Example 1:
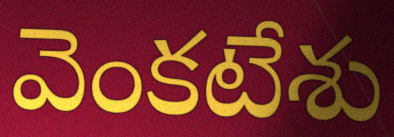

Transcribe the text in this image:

వెంకటేశు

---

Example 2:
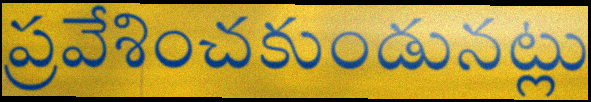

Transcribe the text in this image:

ప్రవేశించకుండునట్లు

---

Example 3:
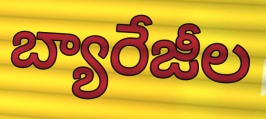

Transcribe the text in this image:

బ్యారేజీల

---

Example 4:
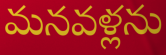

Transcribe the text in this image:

మనవళ్లను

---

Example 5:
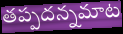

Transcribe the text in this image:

తప్పదన్నమాట